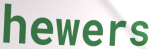
hewers